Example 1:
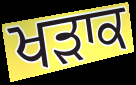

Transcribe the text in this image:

ਖੜਾਕ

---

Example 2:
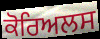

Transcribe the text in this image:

ਕੋਰਿਅਲਸ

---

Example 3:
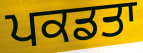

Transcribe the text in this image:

ਪਕਡਤਾ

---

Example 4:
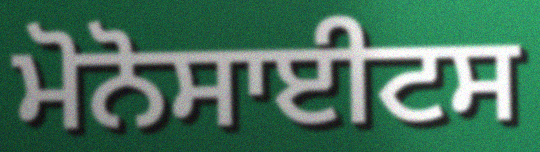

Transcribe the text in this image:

ਮੋਨੋਸਾਈਟਸ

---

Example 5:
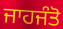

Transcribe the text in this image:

ਜਾਹਜੰਤੋ